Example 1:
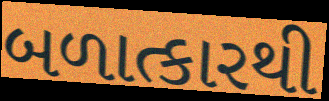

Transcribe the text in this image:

બળાત્કારથી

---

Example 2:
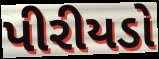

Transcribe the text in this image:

પીરીયડો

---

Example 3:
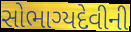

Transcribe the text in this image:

સોભાગ્યદેવીની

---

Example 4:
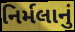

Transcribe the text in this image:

નિર્મલાનું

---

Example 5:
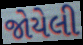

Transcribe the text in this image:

જોયેલી